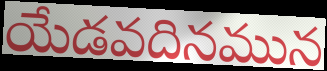
యేడవదినమున